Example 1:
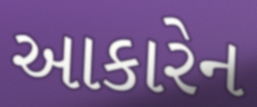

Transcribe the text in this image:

આકારેન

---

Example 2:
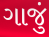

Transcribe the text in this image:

ગાજું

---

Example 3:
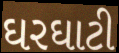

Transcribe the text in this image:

ઘરઘાટી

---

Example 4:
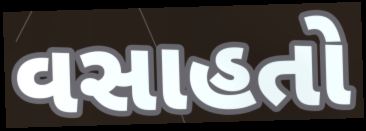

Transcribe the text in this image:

વસાહતો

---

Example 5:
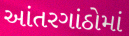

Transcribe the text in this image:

આંતરગાંઠોમાં